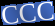
CCC